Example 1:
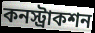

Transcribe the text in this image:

কনস্ট্রাকশন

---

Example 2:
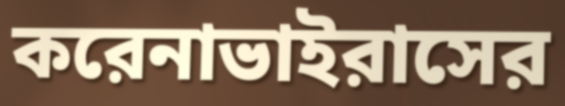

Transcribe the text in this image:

করেনাভাইরাসের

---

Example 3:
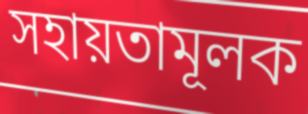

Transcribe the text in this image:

সহায়তামূলক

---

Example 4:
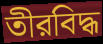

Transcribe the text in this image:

তীরবিদ্ধ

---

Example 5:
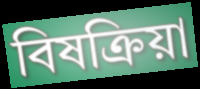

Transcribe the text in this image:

বিষক্রিয়া